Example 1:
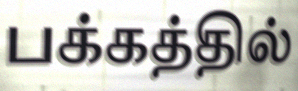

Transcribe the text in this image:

பக்கத்தில்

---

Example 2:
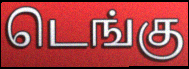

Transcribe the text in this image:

டெங்கு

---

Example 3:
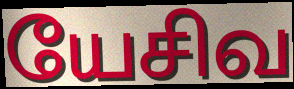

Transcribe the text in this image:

யேசிவ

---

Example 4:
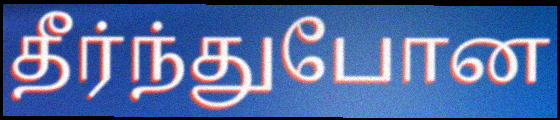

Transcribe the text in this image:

தீர்ந்துபோன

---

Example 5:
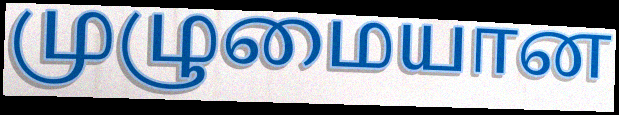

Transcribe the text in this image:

முழுமையான